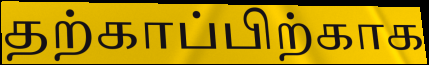
தற்காப்பிற்காக